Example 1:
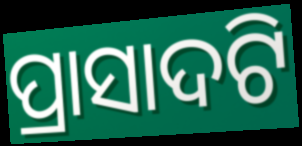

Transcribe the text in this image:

ପ୍ରାସାଦଟି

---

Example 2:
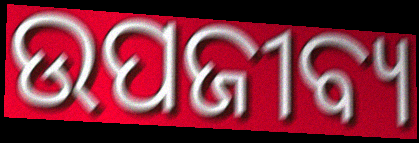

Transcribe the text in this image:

ଉପଜୀବ୍ୟ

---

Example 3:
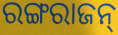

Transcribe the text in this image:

ରଙ୍ଗରାଜନ୍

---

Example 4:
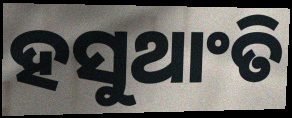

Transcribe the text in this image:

ହସୁଥାଂତି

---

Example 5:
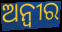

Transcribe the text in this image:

ଅନ୍ୱୀର